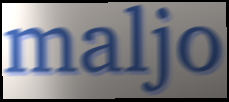
maljo